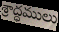
శ్రాద్ధములు